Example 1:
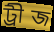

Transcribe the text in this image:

ট্রীজ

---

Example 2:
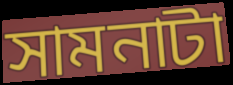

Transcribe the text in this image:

সামনাটা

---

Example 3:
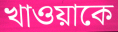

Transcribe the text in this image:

খাওয়াকে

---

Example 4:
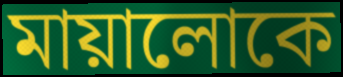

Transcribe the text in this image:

মায়ালোকে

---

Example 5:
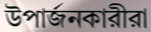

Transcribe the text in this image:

উপার্জনকারীরা